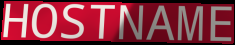
HOSTNAME